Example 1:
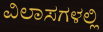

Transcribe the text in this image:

ವಿಲಾಸಗಳಲ್ಲಿ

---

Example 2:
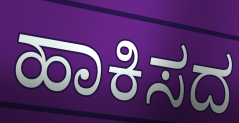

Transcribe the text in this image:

ಹಾಕಿಸದ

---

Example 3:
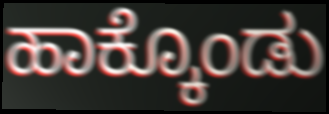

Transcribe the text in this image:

ಹಾಕ್ಕೊಂಡು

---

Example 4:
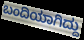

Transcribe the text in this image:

ಬಂದಿಯಾಗಿದ್ದು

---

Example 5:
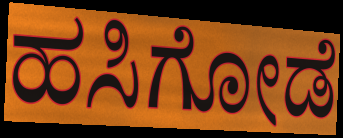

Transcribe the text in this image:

ಹಸಿಗೋಡೆ